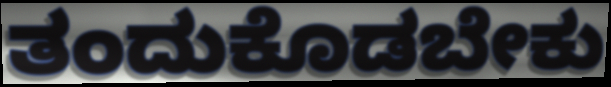
ತಂದುಕೊಡಬೇಕು